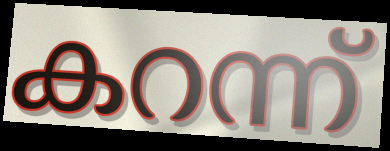
കറന്ന്